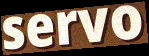
servo